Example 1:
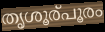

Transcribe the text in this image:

തൃശൂര്പൂരം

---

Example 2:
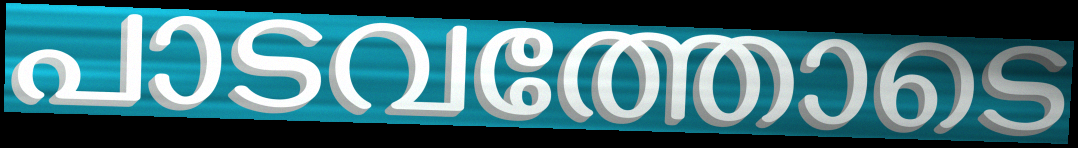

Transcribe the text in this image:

പാടവത്തോടെ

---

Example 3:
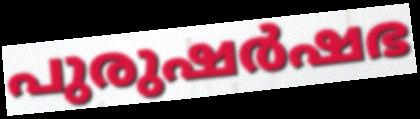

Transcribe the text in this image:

പുരുഷർഷഭ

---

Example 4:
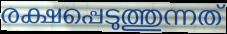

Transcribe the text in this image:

രക്ഷപ്പെടുത്തുന്നത്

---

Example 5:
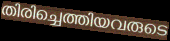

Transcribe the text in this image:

തിരിച്ചെത്തിയവരുടെ